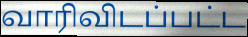
வாரிவிடப்பட்ட